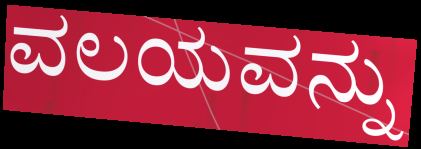
ವಲಯವನ್ನು